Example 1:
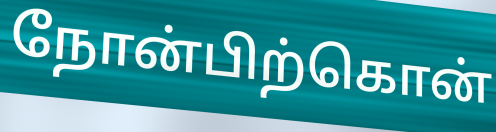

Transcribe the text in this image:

நோன்பிற்கொன்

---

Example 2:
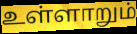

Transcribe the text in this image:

உள்ளாறும்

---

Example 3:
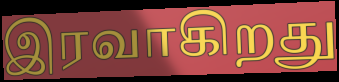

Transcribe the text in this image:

இரவாகிறது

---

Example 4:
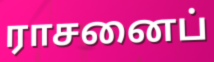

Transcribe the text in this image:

ராசனைப்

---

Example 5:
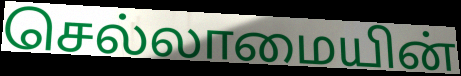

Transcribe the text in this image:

செல்லாமையின்